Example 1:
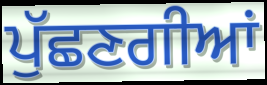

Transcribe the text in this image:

ਪੁੱਛਣਗੀਆਂ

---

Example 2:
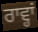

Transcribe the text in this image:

ਰਾਵ੍ਹਾਂ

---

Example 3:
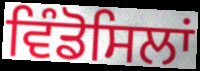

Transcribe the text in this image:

ਵਿੰਡੋਸਿਲਾਂ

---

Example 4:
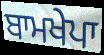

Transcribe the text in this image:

ਬਾਮਖੇਪਾ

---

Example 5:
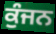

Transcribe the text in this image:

ਕੁੰਜਨ